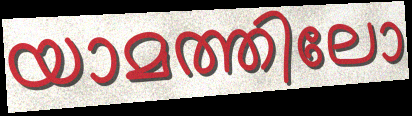
യാമത്തിലോ